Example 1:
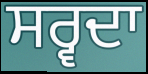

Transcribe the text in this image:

ਸਰ੍ਵਦਾ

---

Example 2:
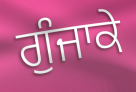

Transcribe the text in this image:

ਗੁੰਜਾਕੇ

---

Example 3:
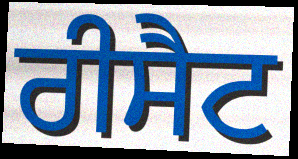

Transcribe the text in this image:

ਰੀਸੈਟ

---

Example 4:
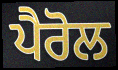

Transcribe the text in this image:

ਪੈਰੋਲ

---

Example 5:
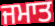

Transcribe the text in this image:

ਜਮਾਤ